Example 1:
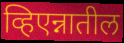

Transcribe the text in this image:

व्हिएन्नातील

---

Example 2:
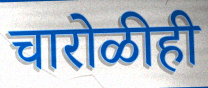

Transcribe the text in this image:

चारोळीही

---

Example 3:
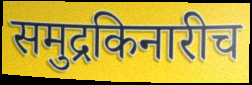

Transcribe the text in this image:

समुद्रकिनारीच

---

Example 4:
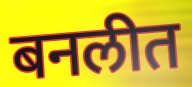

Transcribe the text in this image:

बनलीत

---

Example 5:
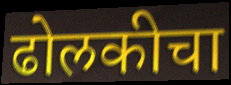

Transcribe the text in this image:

ढोलकीचा